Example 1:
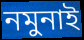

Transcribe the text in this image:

নমুনাই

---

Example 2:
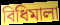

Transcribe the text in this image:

বিধিমালা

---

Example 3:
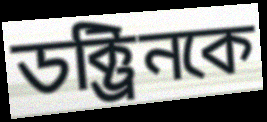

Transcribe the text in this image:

ডক্ট্রিনকে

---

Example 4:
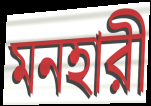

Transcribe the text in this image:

মনহারী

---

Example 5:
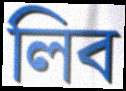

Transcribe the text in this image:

লিব